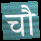
चौ